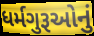
ધર્મગુરૂઓનું